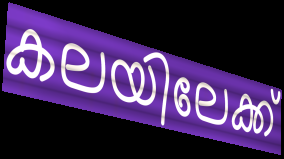
കലയിലേക്ക്